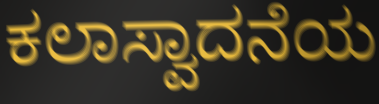
ಕಲಾಸ್ವಾದನೆಯ